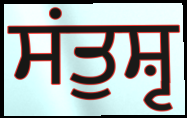
ਸਂਤੁਸ਼੍ਟ